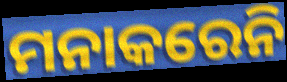
ମନାକରେନି